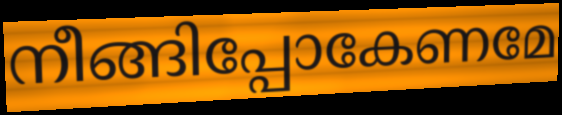
നീങ്ങിപ്പോകേണമേ